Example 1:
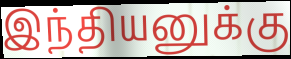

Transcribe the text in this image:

இந்தியனுக்கு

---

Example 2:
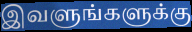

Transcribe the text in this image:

இவளுங்களுக்கு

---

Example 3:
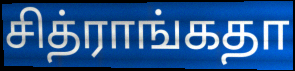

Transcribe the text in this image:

சித்ராங்கதா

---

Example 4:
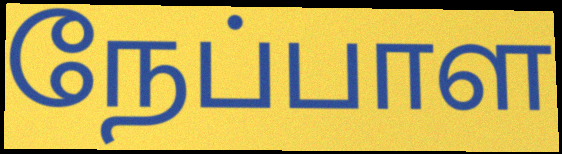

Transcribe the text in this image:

நேப்பாள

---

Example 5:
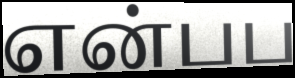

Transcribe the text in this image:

என்பப